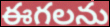
ఈగలను